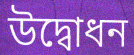
উদ্বোধন